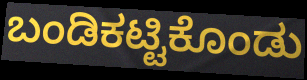
ಬಂಡಿಕಟ್ಟಿಕೊಂಡು